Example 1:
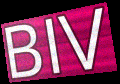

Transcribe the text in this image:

BIV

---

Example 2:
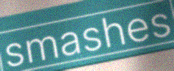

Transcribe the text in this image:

smashes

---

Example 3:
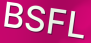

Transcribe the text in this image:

BSFL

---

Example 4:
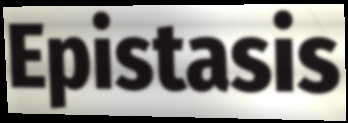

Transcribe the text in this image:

Epistasis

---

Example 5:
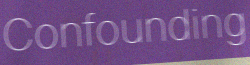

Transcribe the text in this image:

Confounding